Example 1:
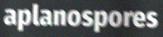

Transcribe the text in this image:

aplanospores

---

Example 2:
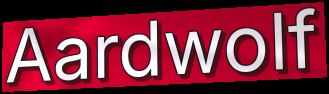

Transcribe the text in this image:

Aardwolf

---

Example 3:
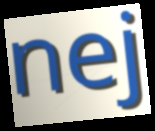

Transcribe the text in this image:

nej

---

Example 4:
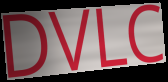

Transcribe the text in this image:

DVLC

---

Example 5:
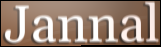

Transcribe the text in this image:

Jannal